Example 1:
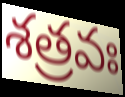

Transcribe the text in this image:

శత్రవః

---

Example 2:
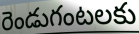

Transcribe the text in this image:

రెండుగంటలకు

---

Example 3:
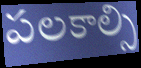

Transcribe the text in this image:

పలకాల్సి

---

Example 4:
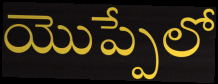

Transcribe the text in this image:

యొప్పేలో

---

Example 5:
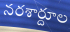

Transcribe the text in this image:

నరశార్దూల